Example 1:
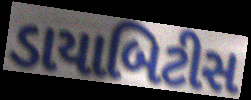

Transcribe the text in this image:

ડાયાબિટીસ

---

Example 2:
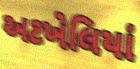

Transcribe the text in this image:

અટખેલિયાં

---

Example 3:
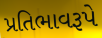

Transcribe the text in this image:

પ્રતિભાવરૂપે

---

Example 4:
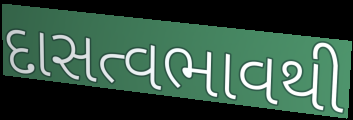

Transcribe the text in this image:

દાસત્વભાવથી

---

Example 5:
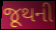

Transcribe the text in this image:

જૂથની